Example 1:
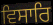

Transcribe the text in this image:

ਵਿਸਾਰਿ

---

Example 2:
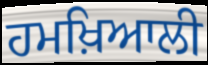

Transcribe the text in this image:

ਹਮਖ਼ਿਆਲੀ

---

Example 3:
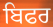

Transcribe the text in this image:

ਬਿਫਰ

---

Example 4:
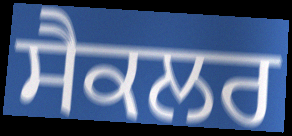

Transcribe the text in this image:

ਸੈਕਲਰ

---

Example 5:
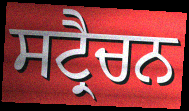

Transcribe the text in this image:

ਸਟ੍ਰੈਚਨ